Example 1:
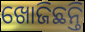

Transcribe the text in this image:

ଖୋଜିଛନ୍ତି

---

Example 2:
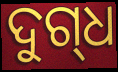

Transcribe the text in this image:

ଦୁଗ୍‌ଧ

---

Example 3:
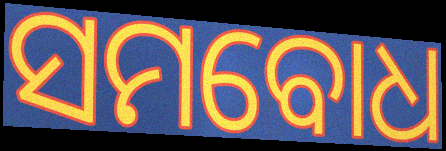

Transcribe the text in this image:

ସମବୋଧ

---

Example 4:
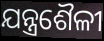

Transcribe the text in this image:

ଯନ୍ତ୍ରଶୈଳୀ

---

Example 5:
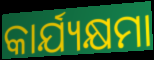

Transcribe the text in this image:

କାର୍ଯ୍ୟକ୍ଷମା